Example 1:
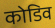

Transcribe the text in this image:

कोडिव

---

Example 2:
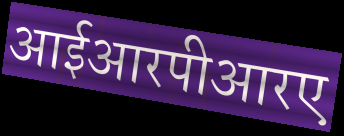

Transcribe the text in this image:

आईआरपीआरए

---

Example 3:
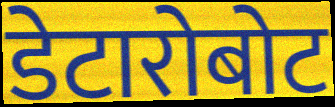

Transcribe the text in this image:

डेटारोबोट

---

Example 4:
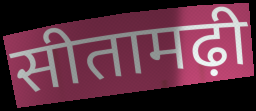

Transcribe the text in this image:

सीतामढ़ी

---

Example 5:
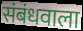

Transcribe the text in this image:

संबंधवाला